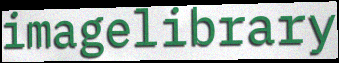
imagelibrary